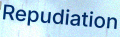
Repudiation